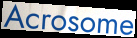
Acrosome